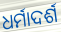
ଧର୍ମାଦର୍ଶ